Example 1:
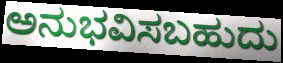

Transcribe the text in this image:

ಅನುಭವಿಸಬಹುದು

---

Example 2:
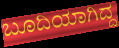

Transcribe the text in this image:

ಬೂದಿಯಾಗಿದ್ದ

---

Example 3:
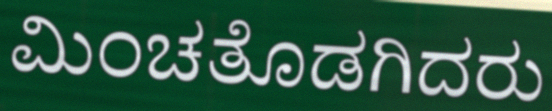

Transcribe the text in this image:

ಮಿಂಚತೊಡಗಿದರು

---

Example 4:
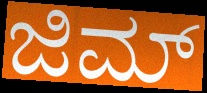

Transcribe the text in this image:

ಜಿಮ್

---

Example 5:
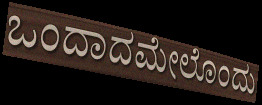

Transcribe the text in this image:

ಒಂದಾದಮೇಲೊಂದು